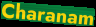
Charanam